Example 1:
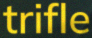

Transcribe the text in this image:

trifle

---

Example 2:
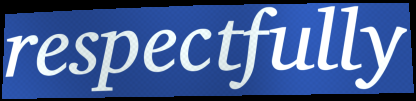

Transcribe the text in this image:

respectfully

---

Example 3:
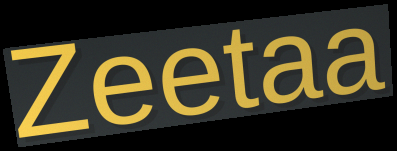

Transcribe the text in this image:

Zeetaa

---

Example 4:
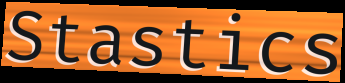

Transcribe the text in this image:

Stastics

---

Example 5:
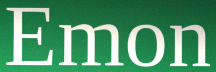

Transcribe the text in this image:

Emon